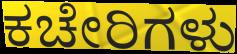
ಕಚೇರಿಗಳು